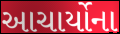
આચાર્યોના